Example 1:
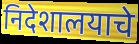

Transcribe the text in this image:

निदेशालयाचे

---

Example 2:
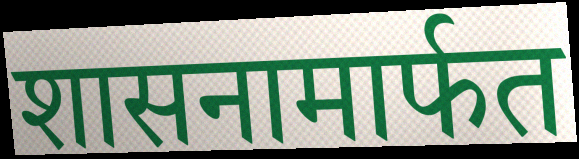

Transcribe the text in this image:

शासनामार्फत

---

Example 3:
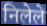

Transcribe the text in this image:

निलेले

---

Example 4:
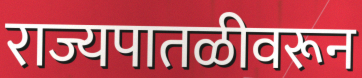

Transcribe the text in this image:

राज्यपातळीवरून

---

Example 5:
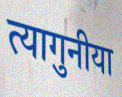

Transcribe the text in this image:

त्यागुनीया